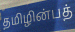
தமிழின்பத்